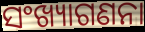
ସଂଖ୍ୟାଗଣନା